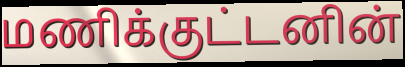
மணிக்குட்டனின்